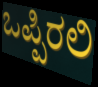
ಒಪ್ಪಿರಲಿ